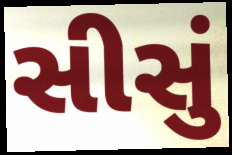
સીસું